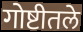
गोष्टीतले